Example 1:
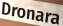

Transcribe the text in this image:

Dronara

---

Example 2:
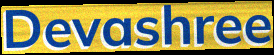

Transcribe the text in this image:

Devashree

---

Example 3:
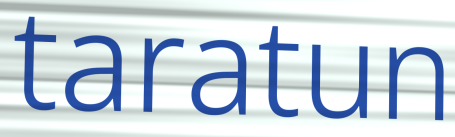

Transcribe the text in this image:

taratun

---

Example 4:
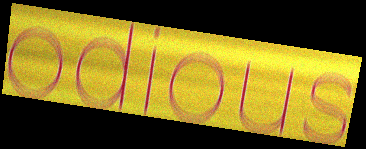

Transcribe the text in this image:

odious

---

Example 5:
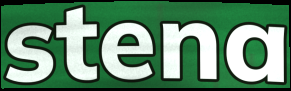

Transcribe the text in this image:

stena